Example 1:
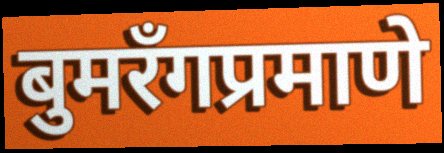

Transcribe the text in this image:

बुमरँगप्रमाणे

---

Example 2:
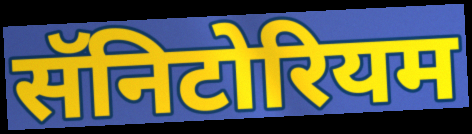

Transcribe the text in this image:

सॅनिटोरियम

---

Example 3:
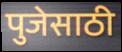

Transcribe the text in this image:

पुजेसाठी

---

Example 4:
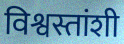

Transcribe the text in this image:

विश्वस्तांशी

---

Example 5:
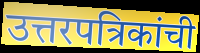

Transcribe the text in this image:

उत्तरपत्रिकांची